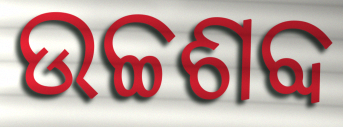
ଉଚ୍ଚଶବ୍ଦ